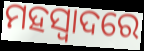
ମହସ୍ୱାଦରେ